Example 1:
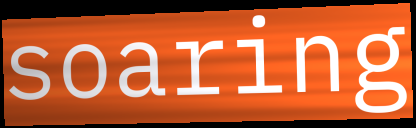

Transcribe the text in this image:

soaring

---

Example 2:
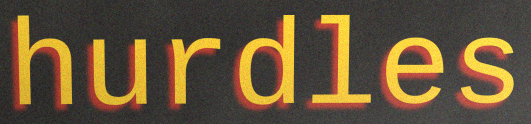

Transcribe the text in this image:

hurdles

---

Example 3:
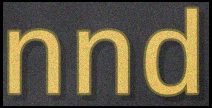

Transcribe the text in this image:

nnd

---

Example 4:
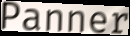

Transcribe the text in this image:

Panner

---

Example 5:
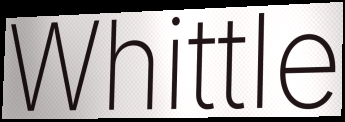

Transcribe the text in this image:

Whittle